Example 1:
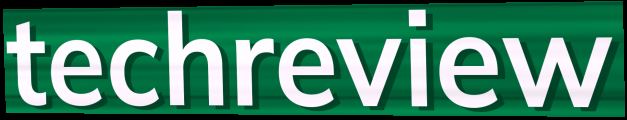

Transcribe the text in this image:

techreview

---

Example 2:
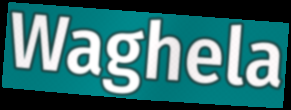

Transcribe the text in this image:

Waghela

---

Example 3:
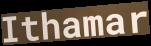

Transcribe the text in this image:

Ithamar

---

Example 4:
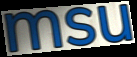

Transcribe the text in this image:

msu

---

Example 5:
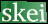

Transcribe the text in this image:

skei